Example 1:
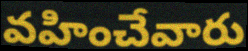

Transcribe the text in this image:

వహించేవారు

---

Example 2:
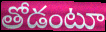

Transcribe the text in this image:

తోడంటూ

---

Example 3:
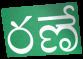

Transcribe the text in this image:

రణే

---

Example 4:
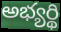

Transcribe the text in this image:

అభ్యర్థి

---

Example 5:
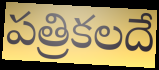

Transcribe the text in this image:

పత్రికలదే